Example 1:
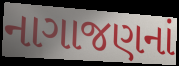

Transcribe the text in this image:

નાગાજણનાં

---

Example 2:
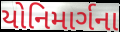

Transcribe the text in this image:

યોનિમાર્ગના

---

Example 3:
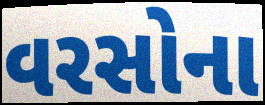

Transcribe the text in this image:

વરસોના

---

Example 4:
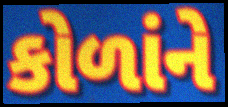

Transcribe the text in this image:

કોળાંને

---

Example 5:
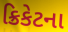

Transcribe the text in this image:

ક્રિકેટના